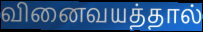
வினைவயத்தால்